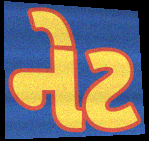
નેટ